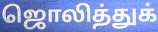
ஜொலித்துக்